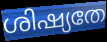
ശിഷ്യതേ